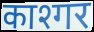
काश्गर